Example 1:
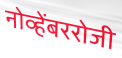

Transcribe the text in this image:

नोव्हेंबररोजी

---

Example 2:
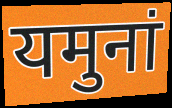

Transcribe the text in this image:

यमुनां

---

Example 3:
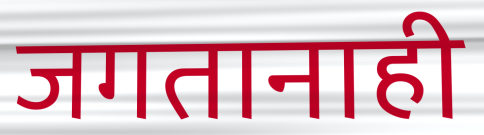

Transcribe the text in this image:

जगतानाही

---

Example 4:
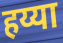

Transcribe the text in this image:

हय्या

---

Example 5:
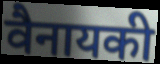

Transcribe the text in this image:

वैनायकी